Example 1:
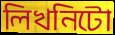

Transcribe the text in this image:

লিখনিটো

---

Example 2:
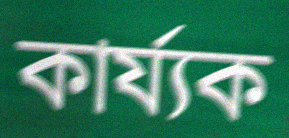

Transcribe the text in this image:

কাৰ্য্যক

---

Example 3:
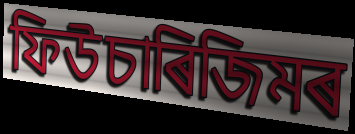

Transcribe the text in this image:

ফিউচাৰিজিমৰ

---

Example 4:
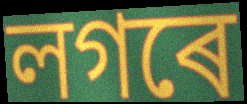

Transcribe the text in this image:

লগৰে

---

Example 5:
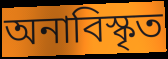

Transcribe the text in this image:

অনাবিস্কৃত